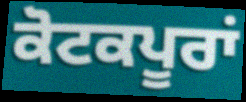
ਕੋਟਕਪੂਰਾਂ